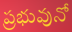
ప్రభువునో